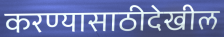
करण्यासाठीदेखील